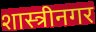
शास्त्रीनगर